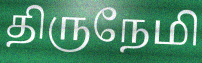
திருநேமி